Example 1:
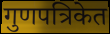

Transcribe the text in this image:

गुणपत्रिकेत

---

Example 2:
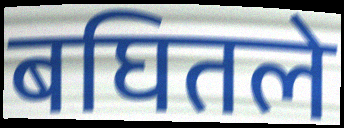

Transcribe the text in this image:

बघितले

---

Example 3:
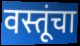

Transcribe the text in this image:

वस्तूंचा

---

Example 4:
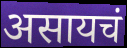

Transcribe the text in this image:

असायचं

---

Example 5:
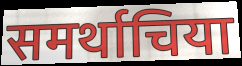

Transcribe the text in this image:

समर्थाचिया